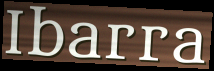
Ibarra